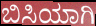
ಬಿಸಿಯಾಗಿ